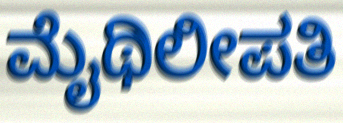
ಮೈಥಿಲೀಪತಿ